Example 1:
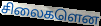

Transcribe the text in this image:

சிலைகளென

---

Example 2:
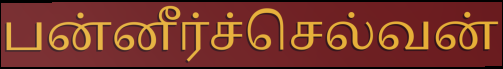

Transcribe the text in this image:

பன்னீர்ச்செல்வன்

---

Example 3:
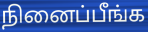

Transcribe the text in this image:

நினைப்பீங்க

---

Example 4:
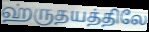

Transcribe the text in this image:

ஹ்ருதயத்திலே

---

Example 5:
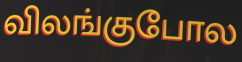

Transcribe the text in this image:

விலங்குபோல